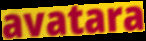
avatara